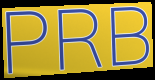
PRB